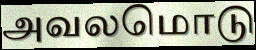
அவலமொடு